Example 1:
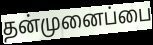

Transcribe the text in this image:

தன்முனைப்பை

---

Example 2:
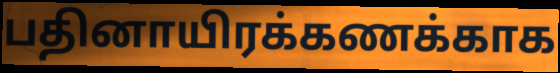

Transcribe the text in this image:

பதினாயிரக்கணக்காக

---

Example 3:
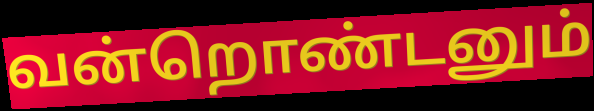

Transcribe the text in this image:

வன்றொண்டனும்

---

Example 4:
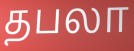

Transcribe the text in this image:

தபலா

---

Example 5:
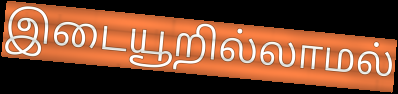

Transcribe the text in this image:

இடையூறில்லாமல்